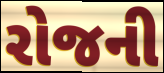
રોજની